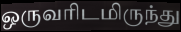
ஒருவரிடமிருந்து